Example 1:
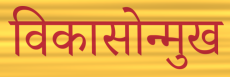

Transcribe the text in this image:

विकासोन्मुख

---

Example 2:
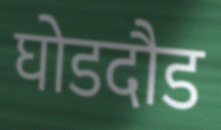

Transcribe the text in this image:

घोडदौड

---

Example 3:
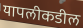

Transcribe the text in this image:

यापलीकडील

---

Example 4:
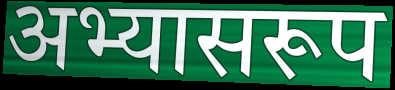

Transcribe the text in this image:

अभ्यासरूप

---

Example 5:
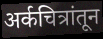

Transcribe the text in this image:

अर्कचित्रांतून